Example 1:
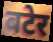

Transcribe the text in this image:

बटेर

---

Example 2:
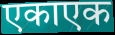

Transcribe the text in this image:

एकाएक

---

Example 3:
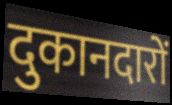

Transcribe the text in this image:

दुकानदारों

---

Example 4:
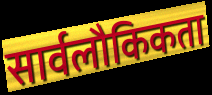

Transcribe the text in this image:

सार्वलौकिकता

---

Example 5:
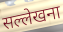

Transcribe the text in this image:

सल्लेखना